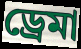
ড্রেমা